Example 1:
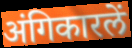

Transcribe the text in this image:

अंगिकारलें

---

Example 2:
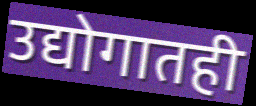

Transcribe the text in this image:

उद्योगातही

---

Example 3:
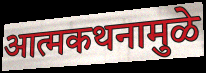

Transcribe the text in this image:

आत्मकथनामुळे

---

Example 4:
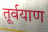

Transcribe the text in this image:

तूर्वयाण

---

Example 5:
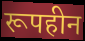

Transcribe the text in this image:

रूपहीन